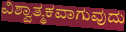
ವಿಶ್ವಾತ್ಮಕವಾಗುವುದು